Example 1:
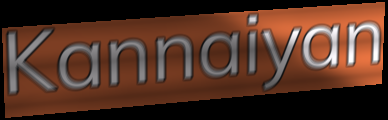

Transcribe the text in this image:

Kannaiyan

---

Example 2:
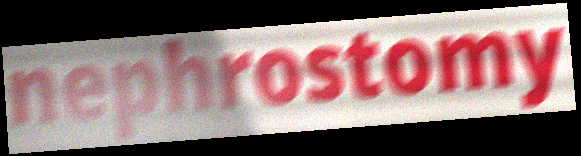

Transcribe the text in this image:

nephrostomy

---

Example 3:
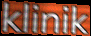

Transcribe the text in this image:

klinik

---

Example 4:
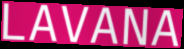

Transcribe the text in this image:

LAVANA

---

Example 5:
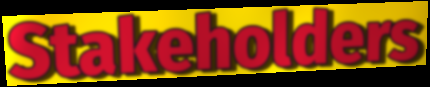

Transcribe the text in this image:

Stakeholders